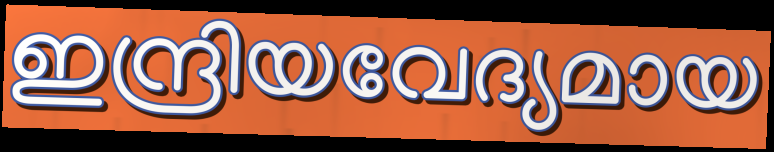
ഇന്ദ്രിയവേദ്യമായ